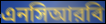
এনসিআরবি